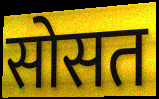
सोसत